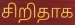
சிறிதாக